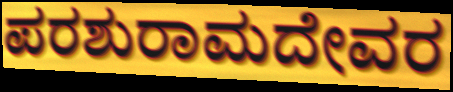
ಪರಶುರಾಮದೇವರ